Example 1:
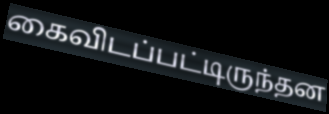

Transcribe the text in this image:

கைவிடப்பட்டிருந்தன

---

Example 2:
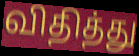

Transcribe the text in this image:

விதித்து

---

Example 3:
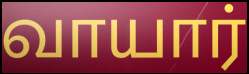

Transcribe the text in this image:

வாயார்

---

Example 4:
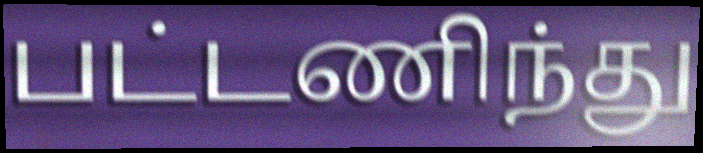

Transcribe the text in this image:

பட்டணிந்து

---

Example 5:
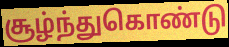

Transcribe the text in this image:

சூழ்ந்துகொண்டு